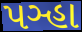
પઞ્હા